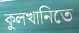
কুলখানিতে